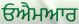
ਓਐਮਆਰ